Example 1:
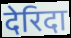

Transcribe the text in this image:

देरिदा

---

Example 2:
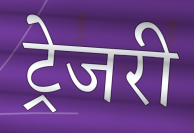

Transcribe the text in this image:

ट्रेजरी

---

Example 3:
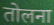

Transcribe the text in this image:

तोलना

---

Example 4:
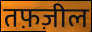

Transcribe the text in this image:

तफ़ज़ील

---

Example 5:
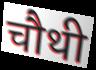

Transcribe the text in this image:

चौथी